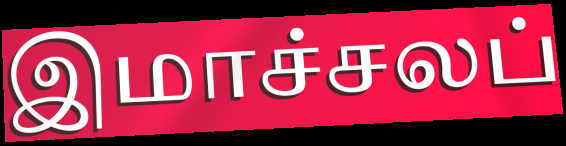
இமாச்சலப்